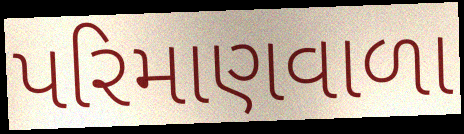
પરિમાણવાળા